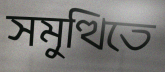
সমুত্থিতে